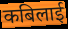
कबिलाई